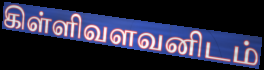
கிள்ளிவளவனிடம்